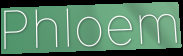
Phloem